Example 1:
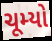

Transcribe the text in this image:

ચૂમ્યો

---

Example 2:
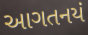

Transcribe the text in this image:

આગતનયં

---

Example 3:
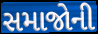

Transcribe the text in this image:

સમાજોની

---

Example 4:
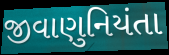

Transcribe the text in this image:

જીવાણુનિયંતા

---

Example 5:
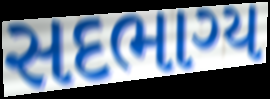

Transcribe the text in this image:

સદભાગ્ય